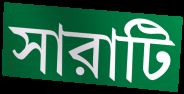
সারাটি